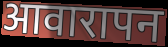
आवारापन